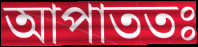
আপাততঃ